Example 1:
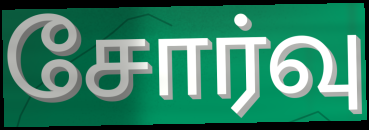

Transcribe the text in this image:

சோர்வு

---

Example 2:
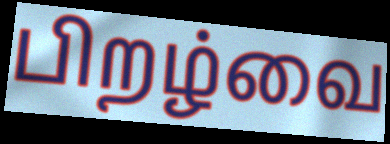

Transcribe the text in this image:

பிறழ்வை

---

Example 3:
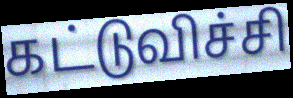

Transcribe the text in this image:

கட்டுவிச்சி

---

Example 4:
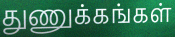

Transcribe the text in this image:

துணுக்கங்கள்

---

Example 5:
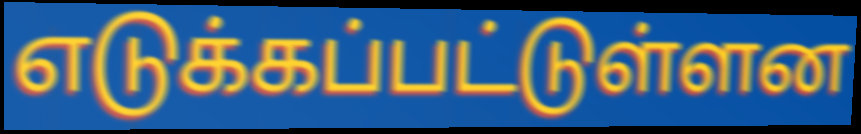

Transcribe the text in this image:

எடுக்கப்பட்டுள்ளன